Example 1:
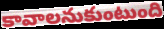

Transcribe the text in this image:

కావాలనుకుంటుంది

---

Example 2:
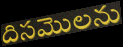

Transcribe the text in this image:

దిసమొలను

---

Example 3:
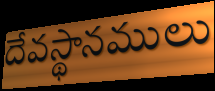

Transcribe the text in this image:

దేవస్థానములు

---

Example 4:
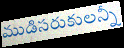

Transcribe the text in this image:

ముడిసరుకులన్నీ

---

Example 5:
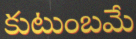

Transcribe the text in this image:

కుటుంబమే